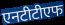
एनटीटीएफ